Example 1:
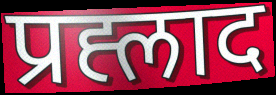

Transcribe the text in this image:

प्रह्लाद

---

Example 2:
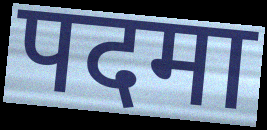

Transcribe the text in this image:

पदमा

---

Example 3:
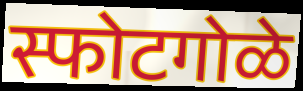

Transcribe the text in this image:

स्फोटगोळे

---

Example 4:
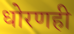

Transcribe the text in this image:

धोरणही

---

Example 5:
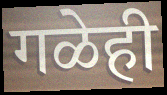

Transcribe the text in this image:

गळेही